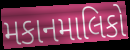
મકાનમાલિકો